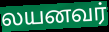
லயனவர்